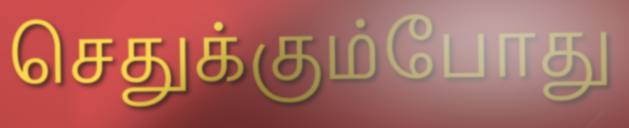
செதுக்கும்போது